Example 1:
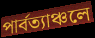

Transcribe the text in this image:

পার্বত্যাঞ্চলে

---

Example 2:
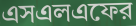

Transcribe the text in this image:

এসএলএফের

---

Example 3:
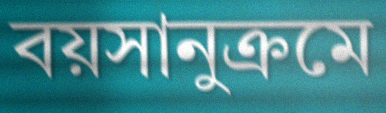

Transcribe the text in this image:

বয়সানুক্রমে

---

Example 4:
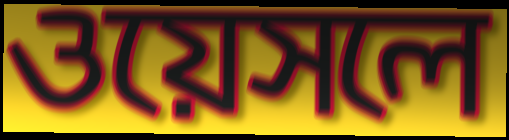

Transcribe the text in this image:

ওয়েসলে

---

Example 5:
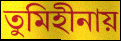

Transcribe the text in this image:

তুমিহীনায়